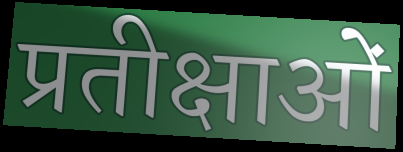
प्रतीक्षाओं